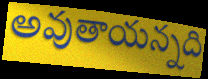
అవుతాయన్నది